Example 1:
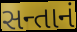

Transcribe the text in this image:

સન્તાનં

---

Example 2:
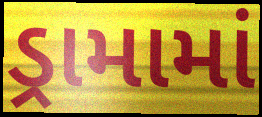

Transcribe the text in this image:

ડ્રામામાં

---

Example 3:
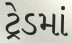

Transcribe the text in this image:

ટ્રેડમાં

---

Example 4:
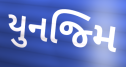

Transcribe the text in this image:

યુનજ્મિ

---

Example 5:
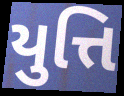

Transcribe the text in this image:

યુત્તિ